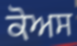
ਕੋਅਸ